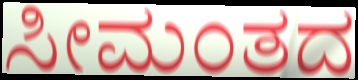
ಸೀಮಂತದ